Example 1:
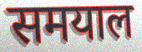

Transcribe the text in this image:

समयाल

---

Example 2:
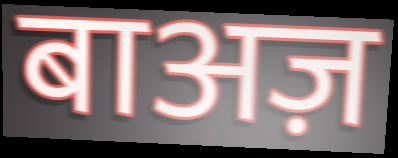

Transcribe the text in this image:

बाअज़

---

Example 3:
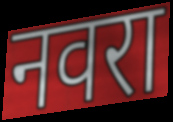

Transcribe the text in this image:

नवरा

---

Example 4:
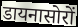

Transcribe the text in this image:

डायनासोरों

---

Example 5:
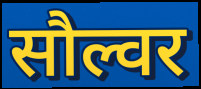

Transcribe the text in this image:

सौल्वर